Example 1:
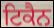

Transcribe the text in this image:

ਟਿਕੈਨ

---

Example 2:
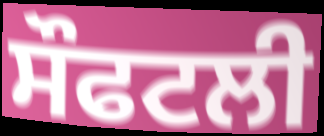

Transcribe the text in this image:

ਸੌਫਟਲੀ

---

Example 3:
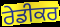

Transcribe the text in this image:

ਰੇਡੀਕਰ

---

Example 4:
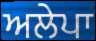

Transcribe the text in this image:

ਅਲੇਪਾ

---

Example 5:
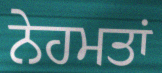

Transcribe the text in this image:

ਨੇਹਮਤਾਂ